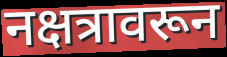
नक्षत्रावरून